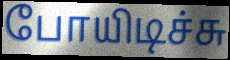
போயிடிச்சு